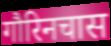
गौरिनचास